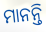
ମାନନ୍ତି